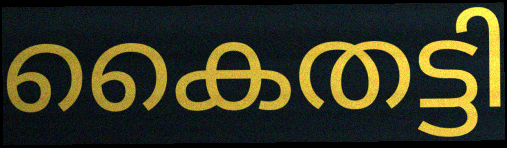
കൈതട്ടി